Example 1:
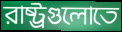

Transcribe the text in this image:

রাষ্ট্রগুলোতে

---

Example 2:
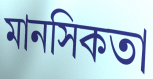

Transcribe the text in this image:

মানসিকতা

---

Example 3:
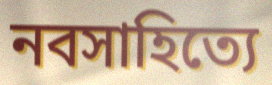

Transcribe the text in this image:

নবসাহিত্যে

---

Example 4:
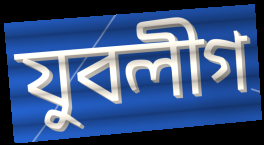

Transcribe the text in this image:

যুবলীগ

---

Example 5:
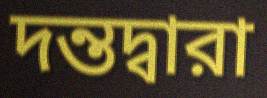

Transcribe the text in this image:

দন্তদ্বারা